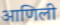
आणिली